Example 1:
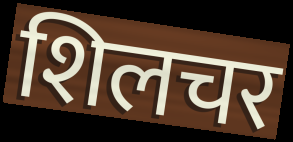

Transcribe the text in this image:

शिलचर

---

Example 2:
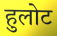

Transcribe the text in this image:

हुलोट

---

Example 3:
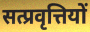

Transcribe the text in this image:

सत्प्रवृत्तियों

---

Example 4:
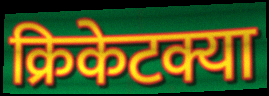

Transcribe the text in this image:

क्रिकेटक्या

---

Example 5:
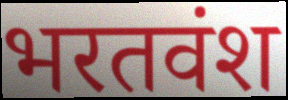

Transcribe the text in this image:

भरतवंश